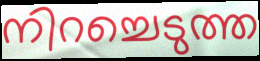
നിറച്ചെടുത്ത